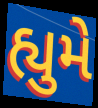
હ્યુમે